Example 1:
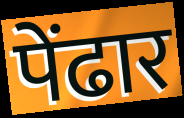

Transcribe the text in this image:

पेंढार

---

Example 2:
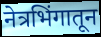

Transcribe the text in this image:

नेत्रभिंगातून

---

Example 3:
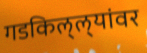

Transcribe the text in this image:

गडकिल्ल्यांवर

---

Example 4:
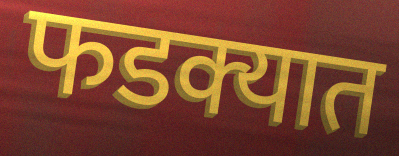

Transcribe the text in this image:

फडक्‍यात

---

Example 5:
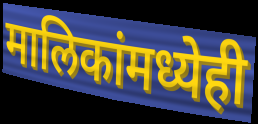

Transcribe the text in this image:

मालिकांमध्येही